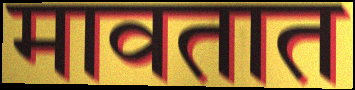
मावतात